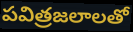
పవిత్రజలాలతో